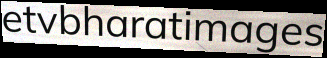
etvbharatimages